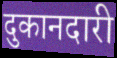
दुकानदारी